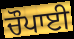
ਚੌਪਾਈ